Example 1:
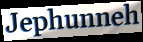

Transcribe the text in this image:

Jephunneh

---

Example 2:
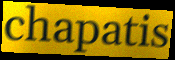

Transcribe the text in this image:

chapatis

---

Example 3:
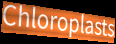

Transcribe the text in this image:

Chloroplasts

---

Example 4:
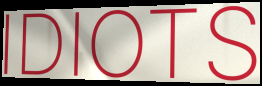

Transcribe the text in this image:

IDIOTS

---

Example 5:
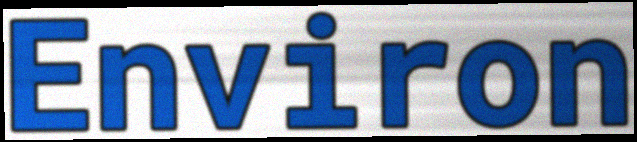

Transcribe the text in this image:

Environ